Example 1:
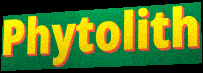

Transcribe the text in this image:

Phytolith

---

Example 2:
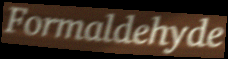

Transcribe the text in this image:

Formaldehyde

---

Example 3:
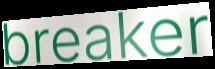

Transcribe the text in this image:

breaker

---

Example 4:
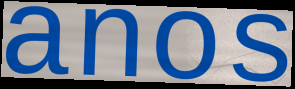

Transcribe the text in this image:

anos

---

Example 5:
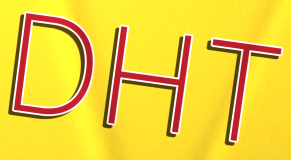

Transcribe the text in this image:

DHT